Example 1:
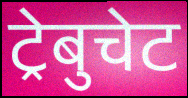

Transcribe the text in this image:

ट्रेबुचेट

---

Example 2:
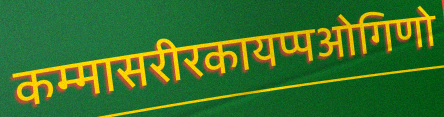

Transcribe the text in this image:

कम्मासरीरकायप्पओगिणो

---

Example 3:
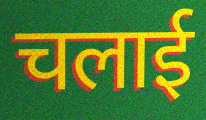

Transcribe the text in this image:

चलाई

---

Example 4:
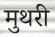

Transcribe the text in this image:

मुथरी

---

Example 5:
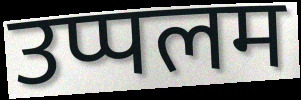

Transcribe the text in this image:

उप्पलम